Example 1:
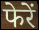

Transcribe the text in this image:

फेरें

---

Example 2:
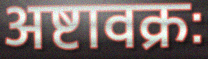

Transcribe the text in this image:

अष्टावक्रः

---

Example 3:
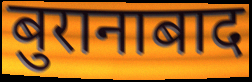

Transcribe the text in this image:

बुरानाबाद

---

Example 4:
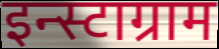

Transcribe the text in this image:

इन्स्टाग्राम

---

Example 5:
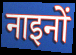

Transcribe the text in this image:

नाइनों